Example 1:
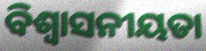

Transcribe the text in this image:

ବିଶ୍ୱାସନୀୟତା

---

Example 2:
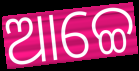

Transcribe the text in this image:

ଆଚ୍ଚେ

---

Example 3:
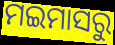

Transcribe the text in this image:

ମଇମାସରୁ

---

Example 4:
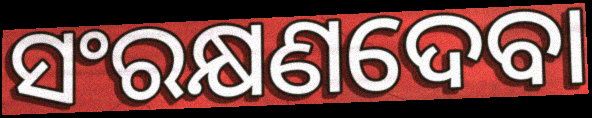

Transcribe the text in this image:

ସଂରକ୍ଷଣଦେବା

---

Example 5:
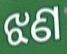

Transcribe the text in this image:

ଝଣ